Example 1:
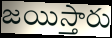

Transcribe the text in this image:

జయిస్తారు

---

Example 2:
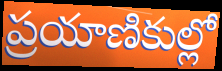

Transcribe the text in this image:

ప్రయాణికుల్లో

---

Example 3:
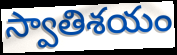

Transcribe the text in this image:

స్వాతిశయం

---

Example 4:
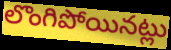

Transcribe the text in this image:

లొంగిపోయినట్లు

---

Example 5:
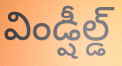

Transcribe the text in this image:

విండ్షీల్డ్